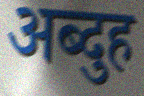
अब्दुह